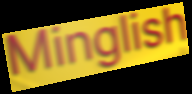
Minglish